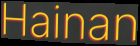
Hainan